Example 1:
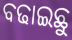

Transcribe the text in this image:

ବଢାଇଛୁ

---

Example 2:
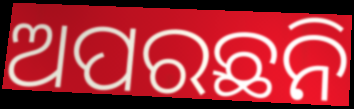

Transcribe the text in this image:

ଅପରଛନି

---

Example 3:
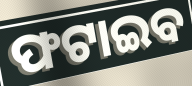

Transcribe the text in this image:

ଫଟାଇବ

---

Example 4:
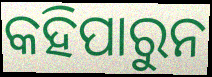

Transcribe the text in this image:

କହିପାରୁନ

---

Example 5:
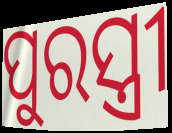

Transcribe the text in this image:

ପୁରସ୍ତ୍ରୀ